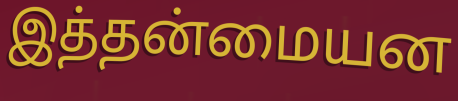
இத்தன்மையன